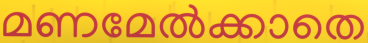
മണമേൽക്കാതെ